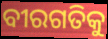
ବୀରଗତିକୁ